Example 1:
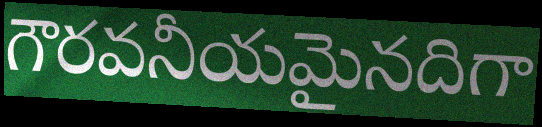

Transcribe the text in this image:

గౌరవనీయమైనదిగా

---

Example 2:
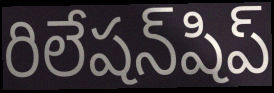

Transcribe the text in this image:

రిలేషన్‌షిప్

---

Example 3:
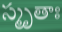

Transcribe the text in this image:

స్మృతాః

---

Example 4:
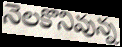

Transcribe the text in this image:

నెలకొనివున్న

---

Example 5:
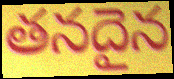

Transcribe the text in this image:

తనదైన